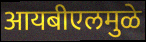
आयबीएलमुळे